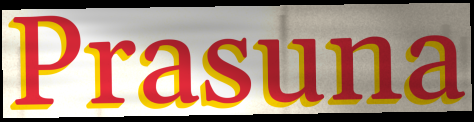
Prasuna